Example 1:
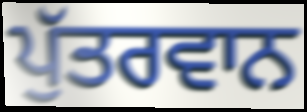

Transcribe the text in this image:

ਪੁੱਤਰਵਾਨ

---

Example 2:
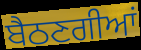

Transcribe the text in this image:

ਬੈਠਣਗੀਆਂ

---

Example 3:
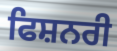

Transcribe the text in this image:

ਫਿਸ਼ਨਰੀ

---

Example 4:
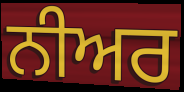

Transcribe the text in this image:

ਨੀਅਰ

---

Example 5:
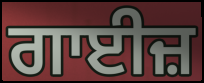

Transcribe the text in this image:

ਗਾਈਜ਼